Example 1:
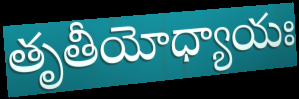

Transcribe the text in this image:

తృతీయోధ్యాయః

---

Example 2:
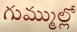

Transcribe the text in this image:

గుమ్ముల్లో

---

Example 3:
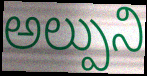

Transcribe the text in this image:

అల్పుని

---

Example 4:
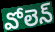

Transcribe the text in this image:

వోలెన్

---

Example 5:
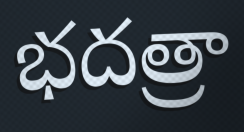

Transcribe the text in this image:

భదత్రా